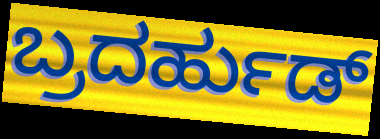
ಬ್ರದರ್ಹುಡ್